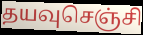
தயவுசெஞ்சி